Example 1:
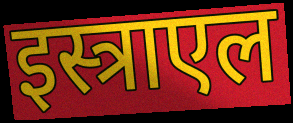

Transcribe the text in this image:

इस्त्राएल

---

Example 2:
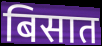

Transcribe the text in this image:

बिसात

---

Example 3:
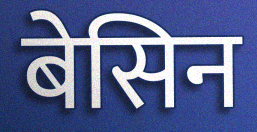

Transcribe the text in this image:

बेसिन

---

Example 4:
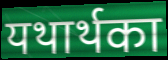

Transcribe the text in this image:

यथार्थका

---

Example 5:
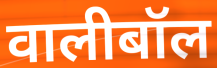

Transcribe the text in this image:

वालीबॉल